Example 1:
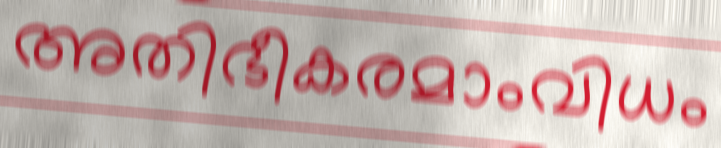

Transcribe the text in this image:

അതിഭീകരമാംവിധം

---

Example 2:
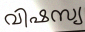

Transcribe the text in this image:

വിഷസ്യ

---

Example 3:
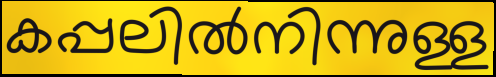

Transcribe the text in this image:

കപ്പലിൽനിന്നുള്ള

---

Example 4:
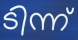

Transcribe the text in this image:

ടിന്ന്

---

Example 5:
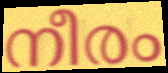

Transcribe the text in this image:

നീരം